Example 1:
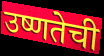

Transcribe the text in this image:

उष्णतेची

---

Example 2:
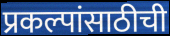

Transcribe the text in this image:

प्रकल्पांसाठीची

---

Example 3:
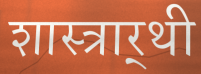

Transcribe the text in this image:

शास्त्रार्थी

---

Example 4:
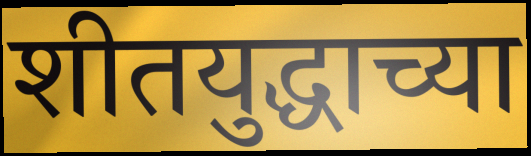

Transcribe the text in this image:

शीतयुद्धाच्या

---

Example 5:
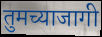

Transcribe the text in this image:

तुमच्याजागी